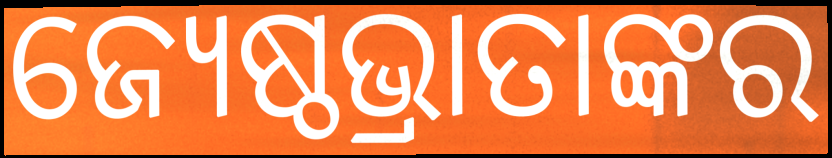
ଜ୍ୟେଷ୍ଠଭ୍ରାତାଙ୍କର